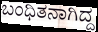
ಬಂಧಿತನಾಗಿದ್ದ